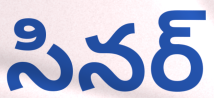
సినర్